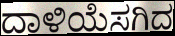
ದಾಳಿಯೆಸಗಿದ